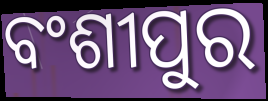
ବଂଶୀପୁର